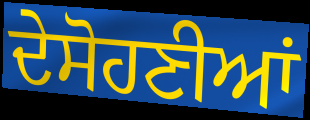
ਦੇਸੋਹਣੀਆਂ